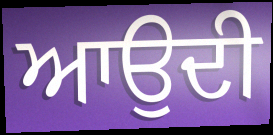
ਆਉਦੀ